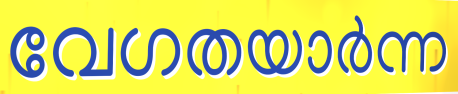
വേഗതയാർന്ന